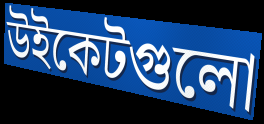
উইকেটগুলো